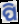
ପି